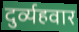
दुर्व्यहवार